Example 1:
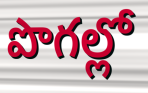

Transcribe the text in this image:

పొగల్లో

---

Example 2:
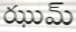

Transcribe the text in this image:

ఝుమ్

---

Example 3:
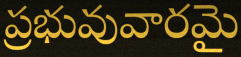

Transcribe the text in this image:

ప్రభువువారమై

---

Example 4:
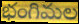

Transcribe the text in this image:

భంగిమల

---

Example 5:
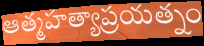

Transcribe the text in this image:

ఆత్మహత్యాప్రయత్నం